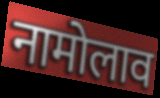
नामोलाव